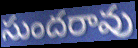
సుందరావు